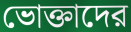
ভোক্তাদের